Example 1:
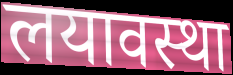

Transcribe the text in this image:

लयावस्था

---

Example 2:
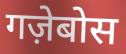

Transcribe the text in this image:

गज़ेबोस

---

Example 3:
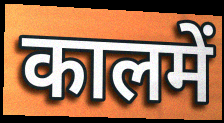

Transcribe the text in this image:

कालमें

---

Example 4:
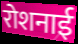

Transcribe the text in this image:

रोशनाई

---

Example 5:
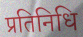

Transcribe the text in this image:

प्रतिनिधि